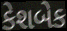
કેશબેક